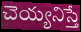
చెయ్యనిస్తే